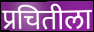
प्रचितीला